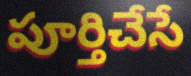
పూర్తిచేసే